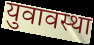
युवावस्था